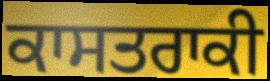
ਕਾਸਤਰਾਕੀ